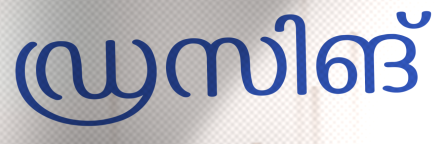
ഡ്രസിങ്